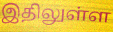
இதிலுள்ள